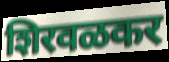
शिरवळकर